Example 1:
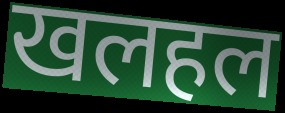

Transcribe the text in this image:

खलहल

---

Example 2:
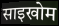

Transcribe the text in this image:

साइखोम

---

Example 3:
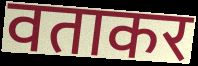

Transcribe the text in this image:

वताकर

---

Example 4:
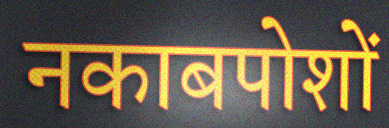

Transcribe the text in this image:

नकाबपोशों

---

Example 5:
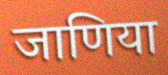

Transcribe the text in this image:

जाणिया